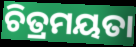
ଚିତ୍ରମୟତା